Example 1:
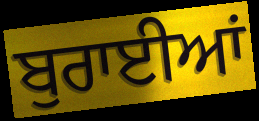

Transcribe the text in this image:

ਬੁਰਾਈਆਂ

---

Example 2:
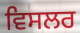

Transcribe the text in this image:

ਵਿਸਲਰ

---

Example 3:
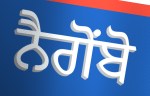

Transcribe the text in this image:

ਨੈਗੋਂਬੋ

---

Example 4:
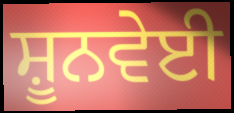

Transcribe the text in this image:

ਸ਼ੂਨਵੇਈ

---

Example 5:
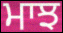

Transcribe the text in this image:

ਮਾਝ